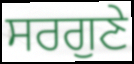
ਸਰਗੁਣੇ